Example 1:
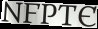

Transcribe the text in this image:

NFPTE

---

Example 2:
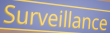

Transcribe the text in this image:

Surveillance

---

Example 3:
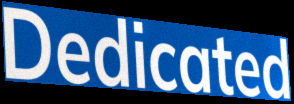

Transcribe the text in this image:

Dedicated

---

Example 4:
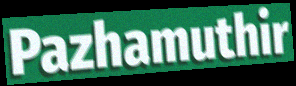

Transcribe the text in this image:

Pazhamuthir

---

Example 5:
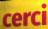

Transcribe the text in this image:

cerci